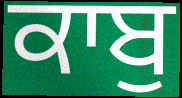
ਕਾਬੁ